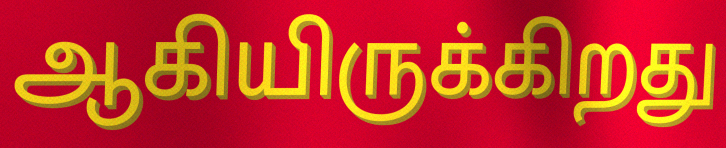
ஆகியிருக்கிறது